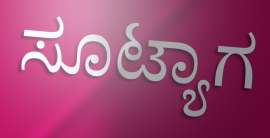
ಸೂಟ್ಯಾಗ